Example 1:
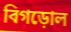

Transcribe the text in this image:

বিগড়োল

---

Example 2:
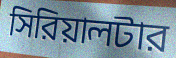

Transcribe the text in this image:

সিরিয়ালটার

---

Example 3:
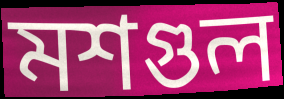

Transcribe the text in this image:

মশগুল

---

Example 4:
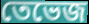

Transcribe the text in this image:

তেভেজ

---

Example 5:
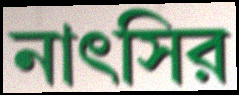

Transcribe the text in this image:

নাৎসির